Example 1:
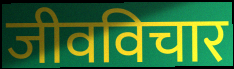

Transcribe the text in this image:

जीवविचार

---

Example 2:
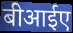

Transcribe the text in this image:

बीआईए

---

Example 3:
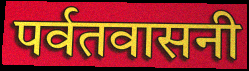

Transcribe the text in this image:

पर्वतवासनी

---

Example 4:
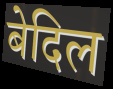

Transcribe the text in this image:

बेदिल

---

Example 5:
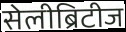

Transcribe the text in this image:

सेलीब्रिटीज